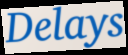
Delays